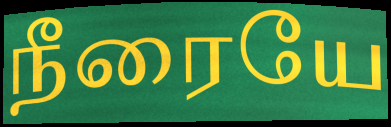
நீரையே